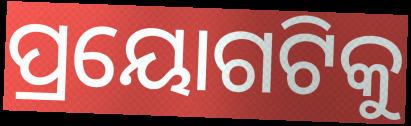
ପ୍ରୟୋଗଟିକୁ